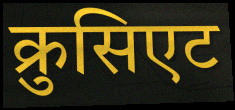
क्रुसिएट